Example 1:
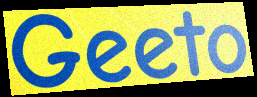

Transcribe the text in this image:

Geeto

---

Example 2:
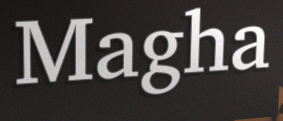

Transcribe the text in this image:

Magha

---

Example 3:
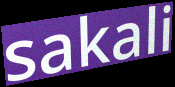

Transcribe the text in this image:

sakali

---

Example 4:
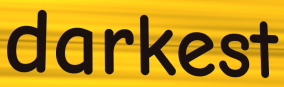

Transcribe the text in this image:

darkest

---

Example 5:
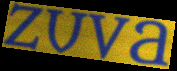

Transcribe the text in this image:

zuva